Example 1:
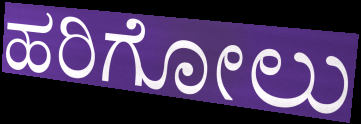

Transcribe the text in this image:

ಹರಿಗೋಲು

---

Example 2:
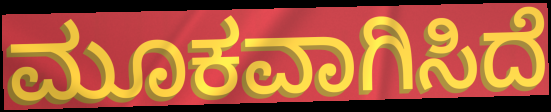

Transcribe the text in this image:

ಮೂಕವಾಗಿಸಿದೆ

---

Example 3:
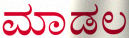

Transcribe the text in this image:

ಮಾಡಲ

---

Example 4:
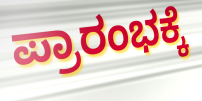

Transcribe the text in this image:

ಪ್ರಾರಂಭಕ್ಕೆ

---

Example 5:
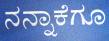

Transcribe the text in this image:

ನನ್ನಾಕೆಗೂ